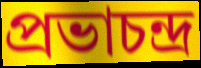
প্রভাচন্দ্র